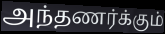
அந்தணர்க்கும்